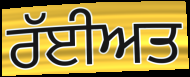
ਰੱਈਅਤ